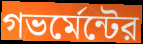
গভর্মেন্টের